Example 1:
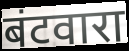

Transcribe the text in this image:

बंटवारा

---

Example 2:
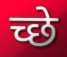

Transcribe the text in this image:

च्छे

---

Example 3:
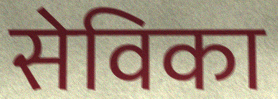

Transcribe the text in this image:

सेविका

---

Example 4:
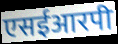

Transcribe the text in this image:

एसईआरपी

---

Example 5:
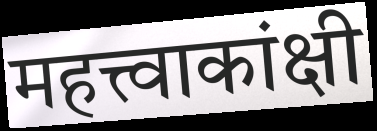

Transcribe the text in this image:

महत्त्वाकांक्षी